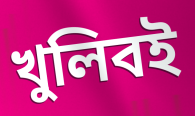
খুলিবই